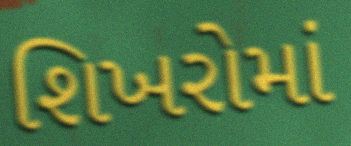
શિખરોમાં